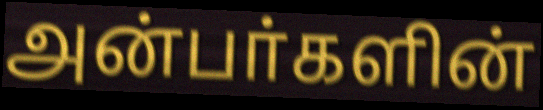
அன்பர்களின்